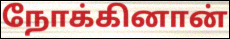
நோக்கினான்